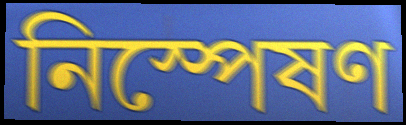
নিস্পেষণ